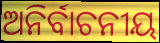
ଅନିର୍ବାଚନୀୟ